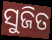
ସୁଜିତ